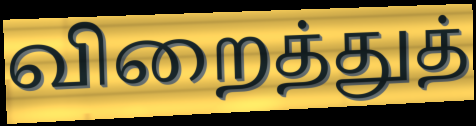
விறைத்துத்